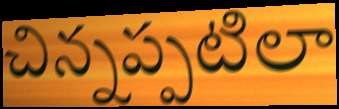
చిన్నప్పటిలా